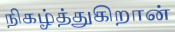
நிகழ்த்துகிறான்